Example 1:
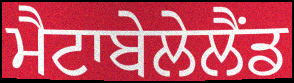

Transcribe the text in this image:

ਮੈਟਾਬੇਲੇਲੈਂਡ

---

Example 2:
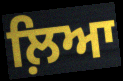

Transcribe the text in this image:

ਲ਼ਿਆ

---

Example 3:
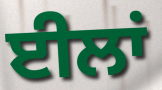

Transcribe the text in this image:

ਈਲਾਂ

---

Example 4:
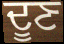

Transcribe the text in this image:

ਦੂਣ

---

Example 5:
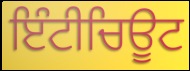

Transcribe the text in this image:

ਇੰਟੀਚਿਊਟ